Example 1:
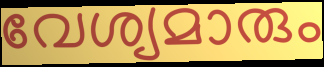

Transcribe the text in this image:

വേശ്യമാരും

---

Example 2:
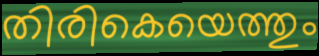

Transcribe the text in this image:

തിരികെയെത്തും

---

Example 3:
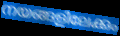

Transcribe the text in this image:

നയങ്ങളിലേക്കും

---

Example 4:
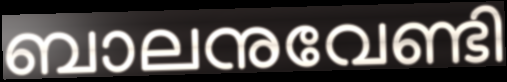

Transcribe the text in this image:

ബാലനുവേണ്ടി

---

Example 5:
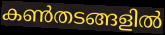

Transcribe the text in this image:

കൺതടങ്ങളിൽ